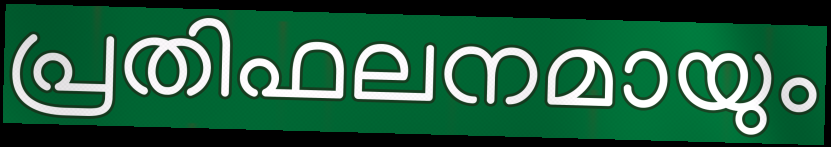
പ്രതിഫലനമായും